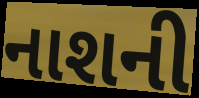
નાશની